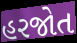
હરજોત